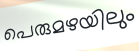
പെരുമഴയിലും